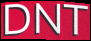
DNT